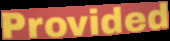
Provided